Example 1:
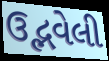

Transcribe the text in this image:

ઉદ્ભવેલી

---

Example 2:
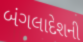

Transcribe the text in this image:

બંગલાદેશની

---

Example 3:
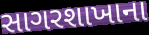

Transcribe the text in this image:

સાગરશાખાના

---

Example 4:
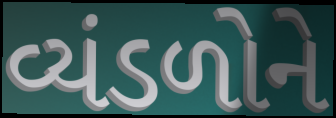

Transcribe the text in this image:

વ્યંડળોને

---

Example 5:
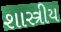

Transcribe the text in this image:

શાસ્ત્રીય